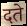
दते